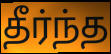
தீர்ந்த